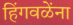
हिंगवळेंना